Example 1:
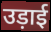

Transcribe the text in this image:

उड़ाई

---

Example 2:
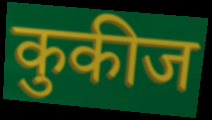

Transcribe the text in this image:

कुकीज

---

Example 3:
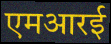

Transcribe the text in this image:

एमआरई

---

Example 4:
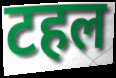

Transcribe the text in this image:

टहल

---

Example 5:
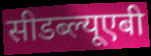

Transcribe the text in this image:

सीडब्ल्यूएबी